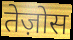
तेज़ोस